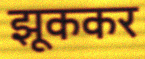
झूककर